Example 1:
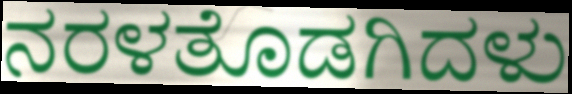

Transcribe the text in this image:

ನರಳತೊಡಗಿದಳು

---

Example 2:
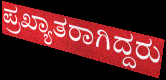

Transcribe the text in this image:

ಪ್ರಖ್ಯಾತರಾಗಿದ್ದರು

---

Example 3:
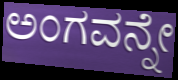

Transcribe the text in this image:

ಅಂಗವನ್ನೇ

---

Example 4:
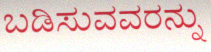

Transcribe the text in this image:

ಬಡಿಸುವವರನ್ನು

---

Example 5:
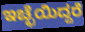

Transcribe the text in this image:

ಇಚ್ಛೆಯಿದ್ದರೆ